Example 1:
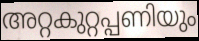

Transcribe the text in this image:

അറ്റകുറ്റപ്പണിയും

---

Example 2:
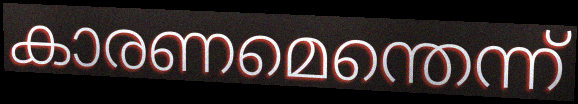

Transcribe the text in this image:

കാരണമെന്തെന്ന്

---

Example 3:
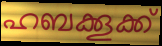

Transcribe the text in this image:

ഹബക്കൂക്ക്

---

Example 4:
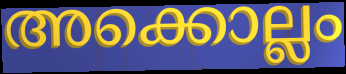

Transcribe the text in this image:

അക്കൊല്ലം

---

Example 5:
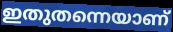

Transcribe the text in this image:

ഇതുതന്നെയാണ്